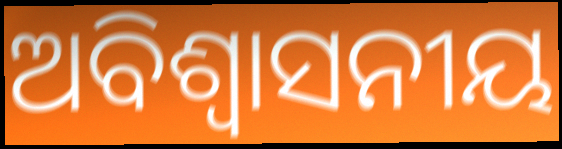
ଅବିଶ୍ୱାସନୀୟ